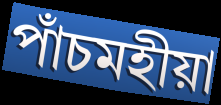
পাঁচমহীয়া